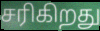
சரிகிறது